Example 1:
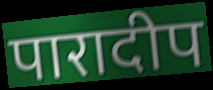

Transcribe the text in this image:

पारादीप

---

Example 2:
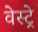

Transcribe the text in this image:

वेस्ट्रे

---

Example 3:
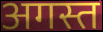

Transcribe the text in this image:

अगस्‍त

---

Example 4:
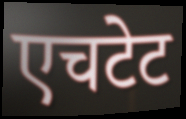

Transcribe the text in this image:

एचटेट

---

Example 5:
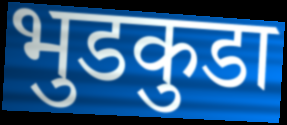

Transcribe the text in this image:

भुडकुडा